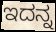
ಇದನ್ನ